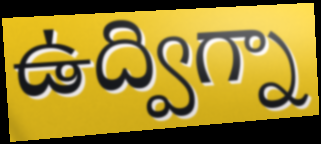
ఉద్విగ్నా